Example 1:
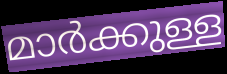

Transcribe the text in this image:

മാർക്കുള്ള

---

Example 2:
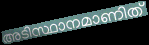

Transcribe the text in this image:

അടിസ്ഥാനമാണിത്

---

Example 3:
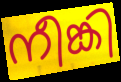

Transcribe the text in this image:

നീങ്കി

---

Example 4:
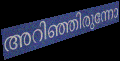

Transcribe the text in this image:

അറിഞ്ഞിരുന്നോ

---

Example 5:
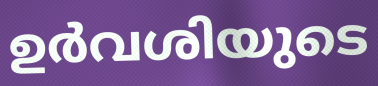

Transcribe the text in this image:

ഉർവശിയുടെ